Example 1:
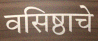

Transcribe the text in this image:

वसिष्ठाचे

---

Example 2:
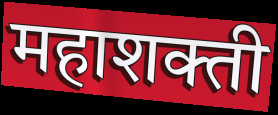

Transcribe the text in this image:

महाशक्‍ती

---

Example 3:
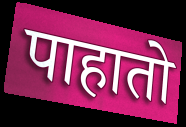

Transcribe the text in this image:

पाहातो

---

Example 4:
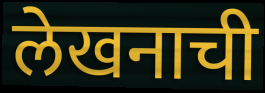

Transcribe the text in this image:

लेखनाची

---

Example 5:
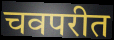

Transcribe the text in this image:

चवपरीत